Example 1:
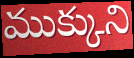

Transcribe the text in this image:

ముక్కుని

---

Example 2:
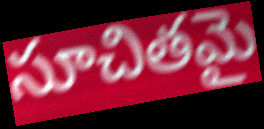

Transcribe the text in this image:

సూచితమై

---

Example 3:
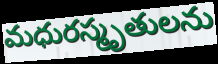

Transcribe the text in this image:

మధురస్మృతులను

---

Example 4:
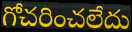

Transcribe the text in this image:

గోచరించలేదు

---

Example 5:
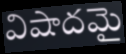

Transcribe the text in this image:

విషాదమై